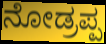
ನೋಡ್ರಪ್ಪ